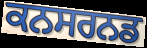
ਕਨਸਰਨਡ